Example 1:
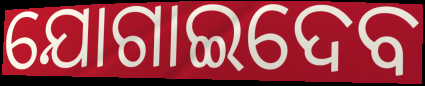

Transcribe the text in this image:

ଯୋଗାଇଦେବ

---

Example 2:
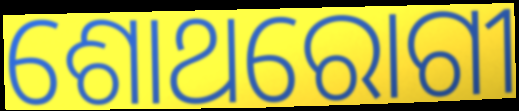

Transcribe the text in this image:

ଶୋଥରୋଗୀ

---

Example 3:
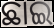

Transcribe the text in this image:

ଛାଇ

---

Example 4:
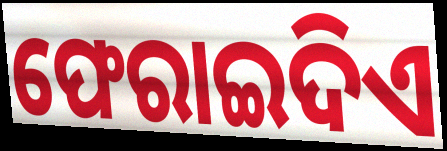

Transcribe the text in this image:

ଫେରାଇଦିଏ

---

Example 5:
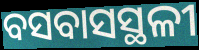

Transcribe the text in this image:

ବସବାସସ୍ଥଳୀ